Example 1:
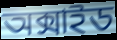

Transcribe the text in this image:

অক্সাইড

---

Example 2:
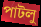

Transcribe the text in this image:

পাটলু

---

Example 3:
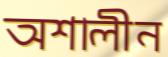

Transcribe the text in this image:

অশালীন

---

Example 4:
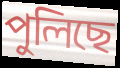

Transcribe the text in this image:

পুলিছে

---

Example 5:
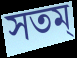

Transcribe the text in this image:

সতম্